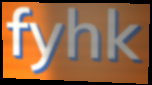
fyhk